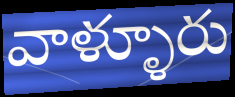
వాళ్ళూరు